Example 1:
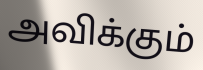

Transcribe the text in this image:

அவிக்கும்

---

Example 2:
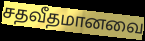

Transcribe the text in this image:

சதவீதமானவை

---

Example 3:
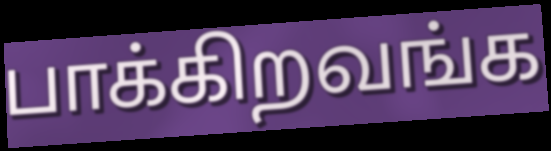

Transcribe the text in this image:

பாக்கிறவங்க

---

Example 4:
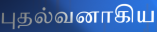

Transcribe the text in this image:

புதல்வனாகிய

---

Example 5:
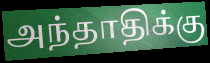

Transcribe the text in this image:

அந்தாதிக்கு